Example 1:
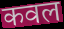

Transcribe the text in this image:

कवल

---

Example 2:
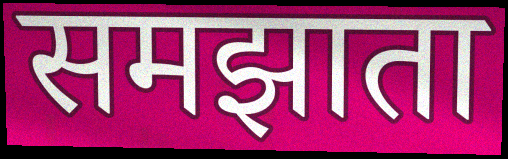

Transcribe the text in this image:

समझाता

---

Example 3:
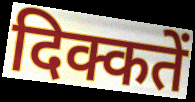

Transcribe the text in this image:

दिक्कतें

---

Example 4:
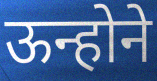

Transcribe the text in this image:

ऊन्होने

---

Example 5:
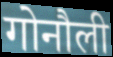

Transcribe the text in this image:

गोनौली